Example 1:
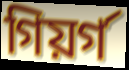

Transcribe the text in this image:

গিয়ৰ্গ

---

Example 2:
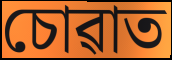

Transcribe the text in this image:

চোৱাত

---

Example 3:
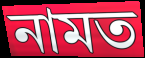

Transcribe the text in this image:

নামত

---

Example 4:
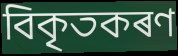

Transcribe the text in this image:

বিকৃতকৰণ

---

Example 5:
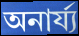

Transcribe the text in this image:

অনাৰ্য্য